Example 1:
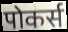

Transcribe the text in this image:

पोकर्स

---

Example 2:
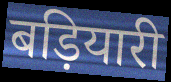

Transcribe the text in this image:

बड़ियारी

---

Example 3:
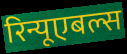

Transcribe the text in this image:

रिन्यूएबल्स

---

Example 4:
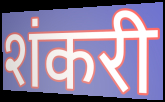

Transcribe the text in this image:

शंकरी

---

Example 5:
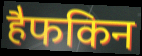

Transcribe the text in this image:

हैफकिन